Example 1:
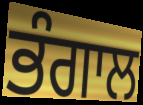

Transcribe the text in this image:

ਭੰਗਾਲ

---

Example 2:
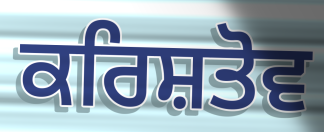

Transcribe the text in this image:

ਕਰਿਸ਼ਤੋਵ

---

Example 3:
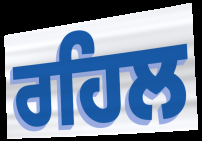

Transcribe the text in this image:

ਰਹਿਲ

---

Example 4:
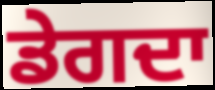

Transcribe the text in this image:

ਡੇਗਦਾ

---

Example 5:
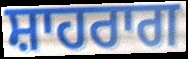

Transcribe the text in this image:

ਸ਼ਾਹਰਾਗ